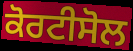
ਕੋਰਟੀਸੋਲ